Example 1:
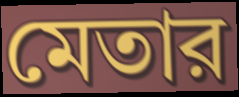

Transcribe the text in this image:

মেতার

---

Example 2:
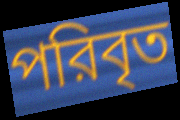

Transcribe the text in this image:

পরিবৃত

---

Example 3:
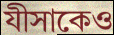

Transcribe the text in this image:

যীসাকেও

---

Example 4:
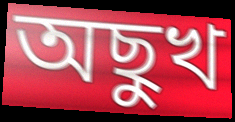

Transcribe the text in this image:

অছুখ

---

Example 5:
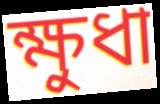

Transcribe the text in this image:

ক্ষুধা